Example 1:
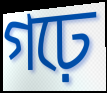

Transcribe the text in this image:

গঢ়ে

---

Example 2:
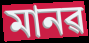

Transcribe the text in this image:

মানৱ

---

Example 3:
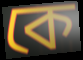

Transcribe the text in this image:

কে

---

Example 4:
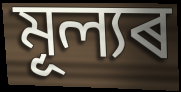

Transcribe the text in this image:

মূল্যৰ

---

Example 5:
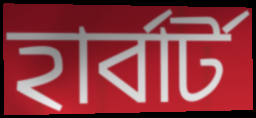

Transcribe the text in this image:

হাৰ্বাৰ্ট